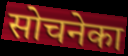
सोचनेका